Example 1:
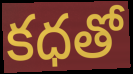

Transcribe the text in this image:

కధతో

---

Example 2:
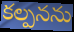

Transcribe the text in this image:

కల్పనను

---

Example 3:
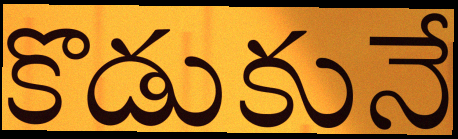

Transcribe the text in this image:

కొడుకునే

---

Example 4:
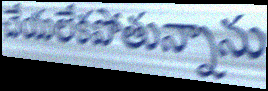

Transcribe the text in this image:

చేయలేకపోతున్నాను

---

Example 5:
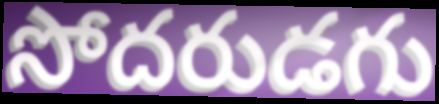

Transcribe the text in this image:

సోదరుడగు